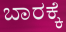
ಬಾರಕ್ಕೆ